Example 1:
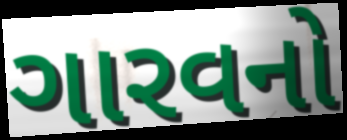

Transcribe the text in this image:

ગારવનો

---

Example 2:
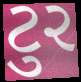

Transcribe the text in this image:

ટુર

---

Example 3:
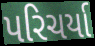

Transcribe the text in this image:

પરિચર્યા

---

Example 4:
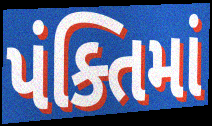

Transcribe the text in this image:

પંક્તિમાં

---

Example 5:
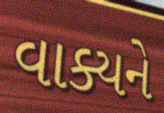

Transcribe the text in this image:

વાક્યને